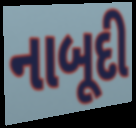
નાબૂદી